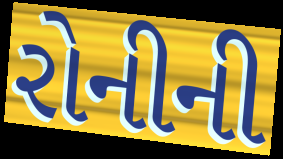
રોનીની